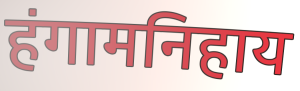
हंगामनिहाय